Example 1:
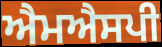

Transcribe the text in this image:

ਐਮਐਸਪੀ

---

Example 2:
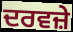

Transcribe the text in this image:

ਦਰਵਜ਼ੇ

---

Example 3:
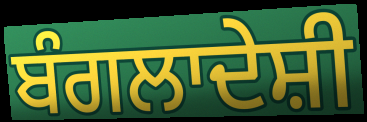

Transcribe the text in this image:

ਬੰਗਲਾਦੇਸ਼ੀ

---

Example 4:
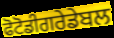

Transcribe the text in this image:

ਫੋਟੋਡੀਗਰੇਡੇਬਲ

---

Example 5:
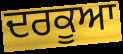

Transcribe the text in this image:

ਦਰਕੂਆ